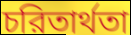
চরিতার্থতা